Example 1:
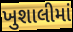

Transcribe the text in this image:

ખુશાલીમાં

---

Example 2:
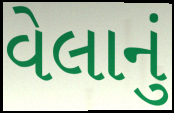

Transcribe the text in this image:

વેલાનું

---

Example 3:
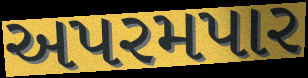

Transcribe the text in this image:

અપરમપાર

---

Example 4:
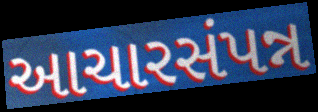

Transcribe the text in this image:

આચારસંપન્ન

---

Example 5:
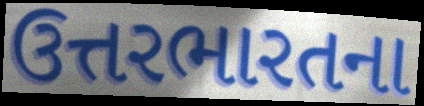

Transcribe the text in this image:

ઉત્તરભારતના